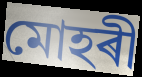
মোহৰী